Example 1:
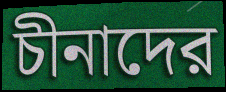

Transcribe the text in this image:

চীনাদের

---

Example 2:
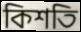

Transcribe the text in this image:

কিশতি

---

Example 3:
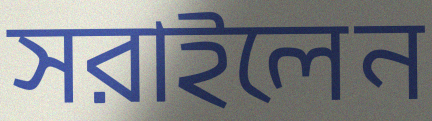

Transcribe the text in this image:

সরাইলেন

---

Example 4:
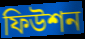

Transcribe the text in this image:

ফিউশন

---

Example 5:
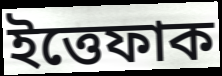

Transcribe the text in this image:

ইত্তেফাক